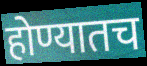
होण्यातच